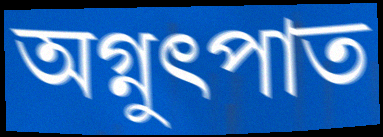
অগ্নুৎপাত